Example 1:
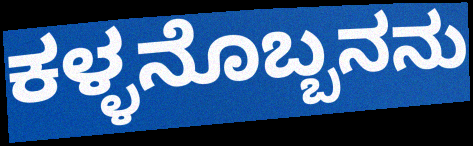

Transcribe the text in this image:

ಕಳ್ಳನೊಬ್ಬನನು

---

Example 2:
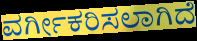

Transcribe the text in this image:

ವರ್ಗೀಕರಿಸಲಾಗಿದೆ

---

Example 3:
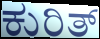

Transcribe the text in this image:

ಕುರಿತ್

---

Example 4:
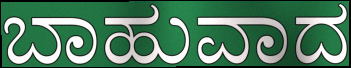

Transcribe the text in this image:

ಬಾಹುವಾದ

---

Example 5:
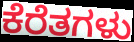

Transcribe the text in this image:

ಕೆರೆತಗಳು